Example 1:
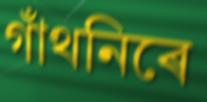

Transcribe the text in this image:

গাঁথনিৰে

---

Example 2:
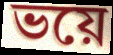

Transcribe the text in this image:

ভয়ে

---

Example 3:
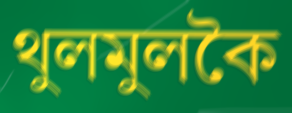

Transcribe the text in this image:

থুলমুলকৈ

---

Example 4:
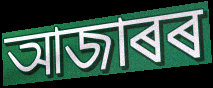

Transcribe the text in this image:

আজাৰৰ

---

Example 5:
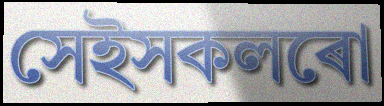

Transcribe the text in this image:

সেইসকলৰো